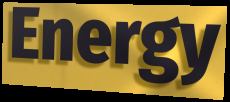
Energy